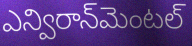
ఎన్విరాన్‌మెంటల్